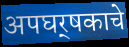
अपघर्षकाचे